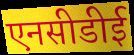
एनसीडीई